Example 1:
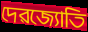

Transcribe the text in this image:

দেৱজ্যোতি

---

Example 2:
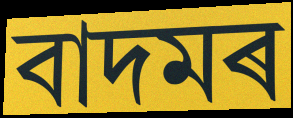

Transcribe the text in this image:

বাদমৰ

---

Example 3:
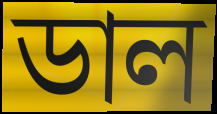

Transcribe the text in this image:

ডাল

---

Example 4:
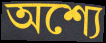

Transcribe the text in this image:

অশ্যে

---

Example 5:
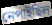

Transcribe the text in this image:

নেপাইছিল